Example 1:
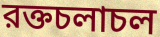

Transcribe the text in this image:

রক্তচলাচল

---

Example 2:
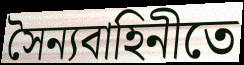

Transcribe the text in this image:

সৈন্যবাহিনীতে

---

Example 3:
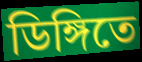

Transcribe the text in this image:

ডিঙ্গিতে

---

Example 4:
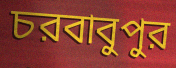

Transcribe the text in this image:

চরবাবুপুর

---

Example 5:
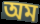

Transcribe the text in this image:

অম